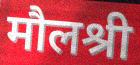
मौलश्री